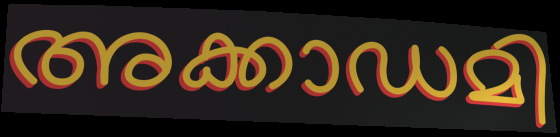
അക്കാഡമി